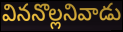
విననొల్లనివాడు